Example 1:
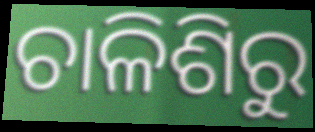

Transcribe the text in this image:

ଚାଳିଶିରୁ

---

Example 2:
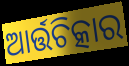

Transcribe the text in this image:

ଆର୍ତ୍ତଚିତ୍କାର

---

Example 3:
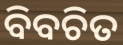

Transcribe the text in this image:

ବିବଚିତ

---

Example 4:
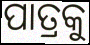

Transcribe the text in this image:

ପାତ୍ରକୁ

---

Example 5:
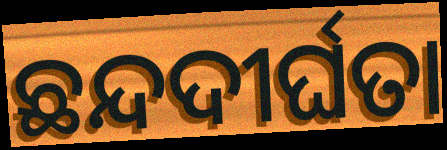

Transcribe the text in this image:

ଛନ୍ଦଦୀର୍ଘତା